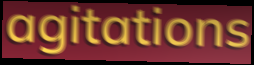
agitations